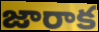
జారాక